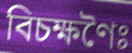
বিচক্ষণৈঃ